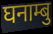
घनाम्बु